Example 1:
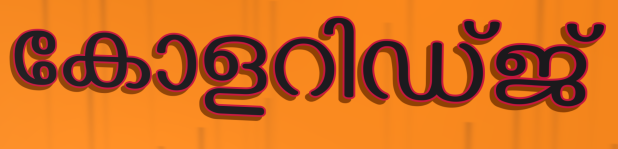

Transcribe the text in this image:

കോളറിഡ്ജ്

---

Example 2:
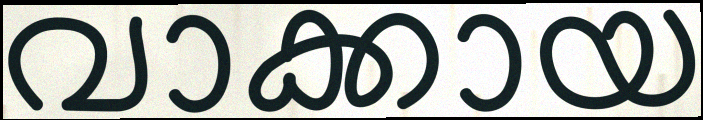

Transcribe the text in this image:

വാക്കായ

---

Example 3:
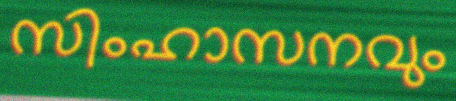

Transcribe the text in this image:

സിംഹാസനവും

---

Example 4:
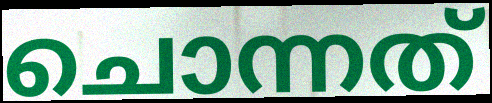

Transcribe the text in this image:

ചൊന്നത്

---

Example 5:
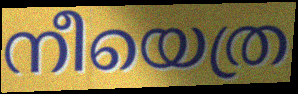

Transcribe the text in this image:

നീയെത്ര